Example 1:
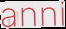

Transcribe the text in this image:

anni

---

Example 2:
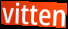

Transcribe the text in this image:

vitten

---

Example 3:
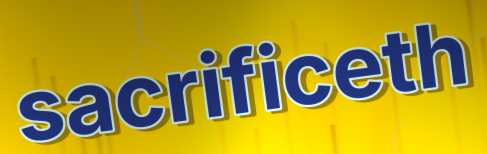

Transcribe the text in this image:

sacrificeth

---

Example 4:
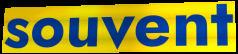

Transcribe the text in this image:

souvent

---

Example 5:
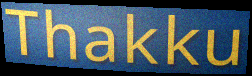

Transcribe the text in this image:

Thakku